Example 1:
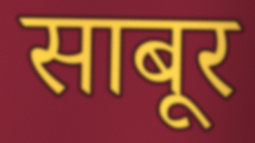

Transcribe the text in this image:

साबूर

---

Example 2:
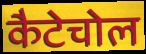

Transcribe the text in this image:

कैटेचोल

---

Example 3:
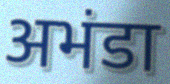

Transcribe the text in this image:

अभंडा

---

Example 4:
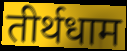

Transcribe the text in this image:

तीर्थधाम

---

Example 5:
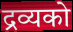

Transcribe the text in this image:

द्रव्यको